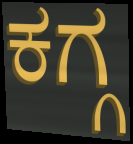
ಕಗ್ಗ